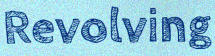
Revolving